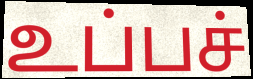
உப்பச்